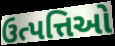
ઉત્પત્તિઓ